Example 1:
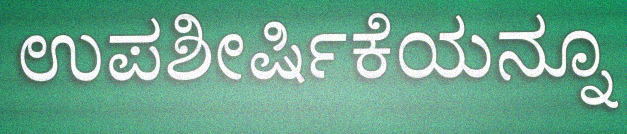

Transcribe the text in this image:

ಉಪಶೀರ್ಷಿಕೆಯನ್ನೂ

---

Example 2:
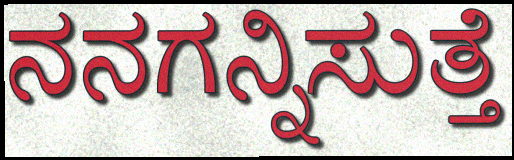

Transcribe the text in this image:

ನನಗನ್ನಿಸುತ್ತೆ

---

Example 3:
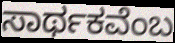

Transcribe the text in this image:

ಸಾರ್ಥಕವೆಂಬ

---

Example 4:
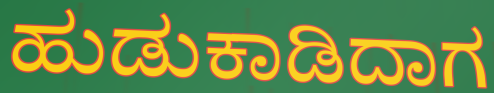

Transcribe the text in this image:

ಹುಡುಕಾಡಿದಾಗ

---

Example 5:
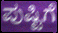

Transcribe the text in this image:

ಪುಷ್ಟಿಗೆ